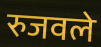
रुजवले